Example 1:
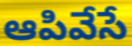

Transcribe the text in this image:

ఆపివేసే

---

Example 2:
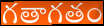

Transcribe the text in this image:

గతాగతం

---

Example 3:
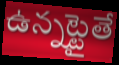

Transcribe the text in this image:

ఉన్నట్టైతే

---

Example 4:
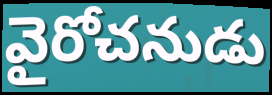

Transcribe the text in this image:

వైరోచనుడు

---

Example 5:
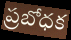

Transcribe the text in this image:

ప్రబోధక